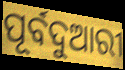
ପୂର୍ବଦୁଆରୀ